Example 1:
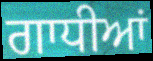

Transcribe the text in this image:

ਗਾਧੀਆਂ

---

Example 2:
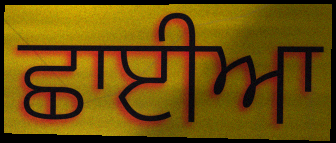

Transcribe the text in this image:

ਛਾਈਆ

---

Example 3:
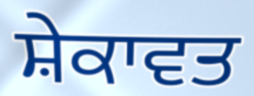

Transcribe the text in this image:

ਸ਼ੇਕਾਵਤ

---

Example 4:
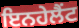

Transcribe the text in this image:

ਇਨਹੇਲੈਂਟ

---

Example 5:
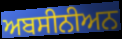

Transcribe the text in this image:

ਅਬਸੀਨੀਅਨ